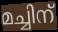
മച്ചിന്